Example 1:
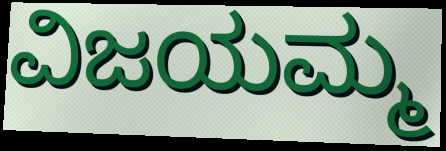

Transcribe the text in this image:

ವಿಜಯಮ್ಮ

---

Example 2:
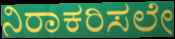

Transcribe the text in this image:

ನಿರಾಕರಿಸಲೇ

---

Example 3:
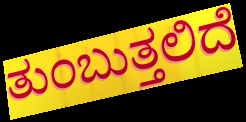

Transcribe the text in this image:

ತುಂಬುತ್ತಲಿದೆ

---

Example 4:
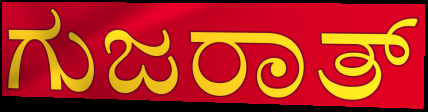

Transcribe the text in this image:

ಗುಜರಾತ್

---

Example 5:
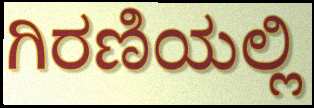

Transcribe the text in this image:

ಗಿರಣಿಯಲ್ಲಿ